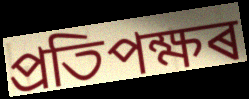
প্ৰতিপক্ষৰ